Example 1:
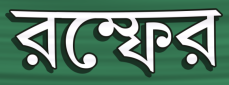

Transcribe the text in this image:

রম্ফের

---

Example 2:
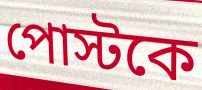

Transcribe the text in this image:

পোস্টকে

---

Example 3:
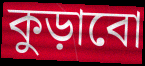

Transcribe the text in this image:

কুড়াবো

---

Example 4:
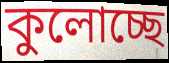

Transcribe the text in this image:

কুলোচ্ছে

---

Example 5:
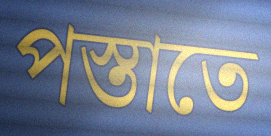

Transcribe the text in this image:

পস্তাতে